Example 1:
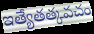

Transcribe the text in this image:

ఇత్యేతత్కవచం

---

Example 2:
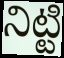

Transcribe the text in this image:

నిట్టి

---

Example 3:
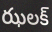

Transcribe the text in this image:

ఝలక్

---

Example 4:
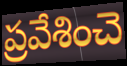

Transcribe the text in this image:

ప్రవేశించె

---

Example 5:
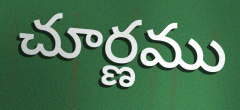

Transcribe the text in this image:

చూర్ణము